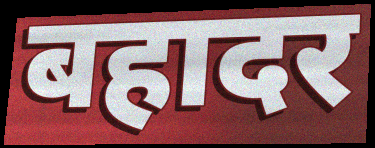
बहादर